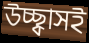
উচ্ছ্বাসই